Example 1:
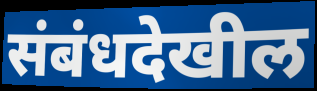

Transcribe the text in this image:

संबंधदेखील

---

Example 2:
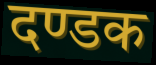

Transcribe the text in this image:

दण्डक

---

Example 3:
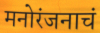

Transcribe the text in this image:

मनोरंजनाचं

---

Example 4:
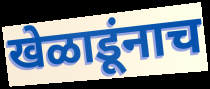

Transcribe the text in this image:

खेळाडूंनाच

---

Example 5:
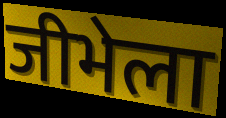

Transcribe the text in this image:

जीभेला